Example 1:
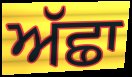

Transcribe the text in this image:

ਅੱਛਾ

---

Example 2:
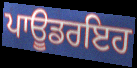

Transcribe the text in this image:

ਪਾਊਡਰਇਹ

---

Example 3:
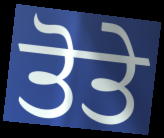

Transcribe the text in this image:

ਤੋਤੇ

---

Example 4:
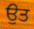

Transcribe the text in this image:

ਉਤ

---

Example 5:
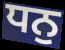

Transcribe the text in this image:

ਧਨੁ